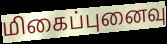
மிகைப்புனைவு